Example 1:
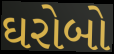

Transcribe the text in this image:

ઘરોબો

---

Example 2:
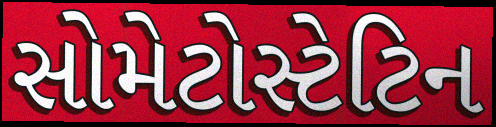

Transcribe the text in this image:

સોમેટોસ્ટેટિન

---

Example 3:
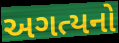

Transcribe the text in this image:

અગત્યનો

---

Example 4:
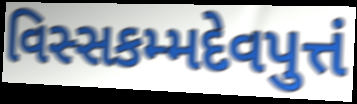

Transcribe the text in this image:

વિસ્સકમ્મદેવપુત્તં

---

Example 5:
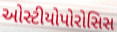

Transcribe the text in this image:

ઓસ્ટીયોપોરોસિસ